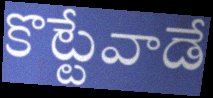
కొట్టేవాడే